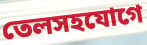
তেলসহযোগে